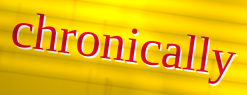
chronically